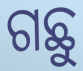
ଗଛୁ